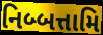
નિબ્બત્તામિ